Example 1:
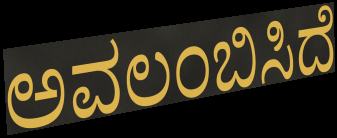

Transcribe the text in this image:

ಅವಲಂಬಿಸಿದೆ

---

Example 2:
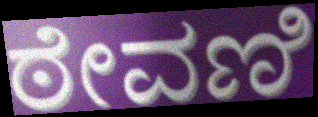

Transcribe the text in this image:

ಠೇವಣಿ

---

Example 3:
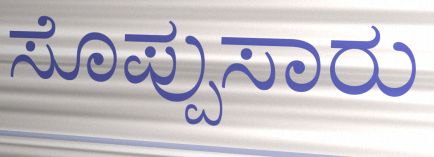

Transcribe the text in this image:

ಸೊಪ್ಪುಸಾರು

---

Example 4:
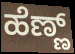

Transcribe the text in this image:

ಹೆಣ್ಣ್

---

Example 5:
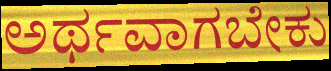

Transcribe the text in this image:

ಅರ್ಥವಾಗಬೇಕು